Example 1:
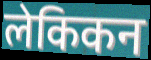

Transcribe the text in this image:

लेकिकन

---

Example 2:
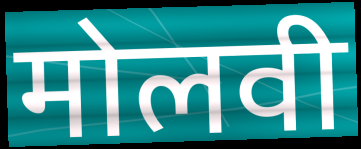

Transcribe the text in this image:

मोलवी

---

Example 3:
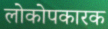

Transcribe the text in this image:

लोकोपकारक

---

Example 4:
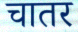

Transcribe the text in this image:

चातर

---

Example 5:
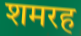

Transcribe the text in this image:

शमरह